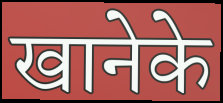
खानेके